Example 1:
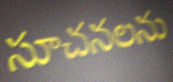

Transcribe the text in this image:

సూచనలను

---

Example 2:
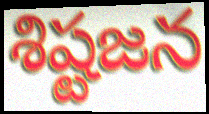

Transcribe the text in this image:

శిష్టజన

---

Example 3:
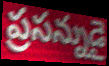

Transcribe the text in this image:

ప్రసన్నుడై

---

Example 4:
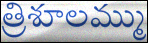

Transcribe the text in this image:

త్రిశూలమ్ము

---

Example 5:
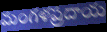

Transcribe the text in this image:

మంగళప్రదాయ